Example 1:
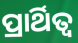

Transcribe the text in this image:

ପ୍ରାର୍ଥିତ୍ୱ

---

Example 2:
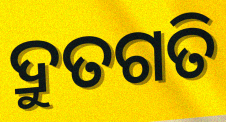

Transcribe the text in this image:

ଦ୍ରୁତଗତି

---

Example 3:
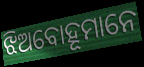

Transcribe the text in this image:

ଝିଅବୋହୂମାନେ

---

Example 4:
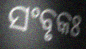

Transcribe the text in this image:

ସଂବୃକଃ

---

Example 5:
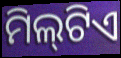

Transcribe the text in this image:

ମିଲ୍‌ଟିଏ